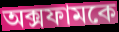
অক্সফামকে